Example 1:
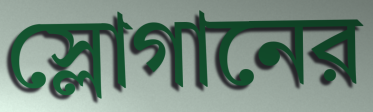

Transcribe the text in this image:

স্লোগানের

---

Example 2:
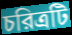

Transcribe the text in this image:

চরিত্রটি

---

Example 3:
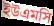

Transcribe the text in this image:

ইউএমসি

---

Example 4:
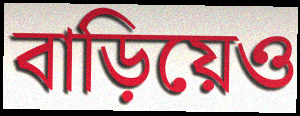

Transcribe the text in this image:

বাড়িয়েও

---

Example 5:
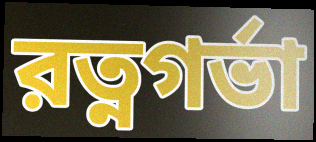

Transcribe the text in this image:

রত্নগর্ভা